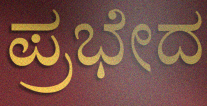
ಪ್ರಭೇದ